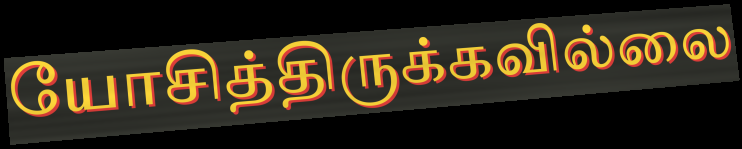
யோசித்திருக்கவில்லை